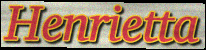
Henrietta